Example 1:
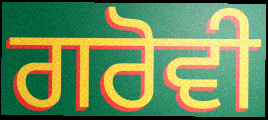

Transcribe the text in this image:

ਗਰੋਵੀ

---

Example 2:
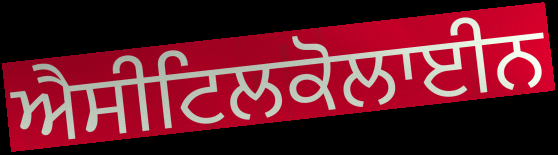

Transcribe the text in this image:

ਐਸੀਟਿਲਕੋਲਾਈਨ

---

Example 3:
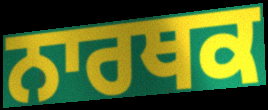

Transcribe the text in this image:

ਨਾਰਥਕ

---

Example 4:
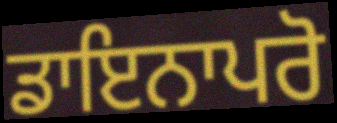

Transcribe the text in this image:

ਡਾਇਨਾਪਰੋ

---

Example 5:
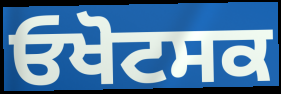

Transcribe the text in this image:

ਓਖੋਟਸਕ